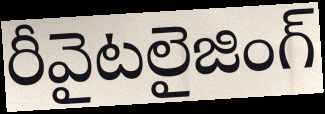
రీవైటలైజింగ్